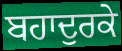
ਬਹਾਦੁਰਕੇ